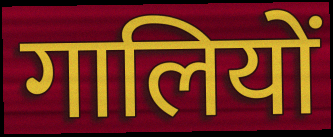
गालियों